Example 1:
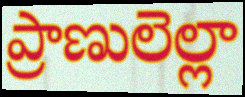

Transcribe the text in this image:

ప్రాణులెల్లా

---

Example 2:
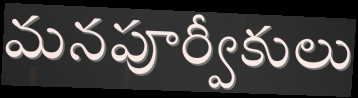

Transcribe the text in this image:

మనపూర్వీకులు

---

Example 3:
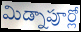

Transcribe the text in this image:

మిడ్నాపూర్లో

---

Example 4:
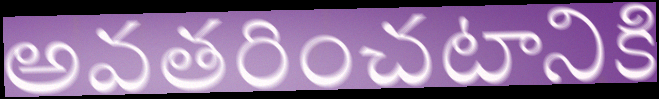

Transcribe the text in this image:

అవతరించటానికి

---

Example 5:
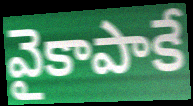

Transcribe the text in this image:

వైకాపాకే